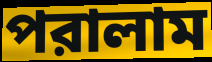
পরালাম